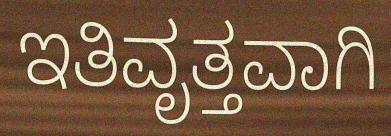
ಇತಿವೃತ್ತವಾಗಿ